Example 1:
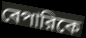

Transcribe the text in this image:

বেপারিকে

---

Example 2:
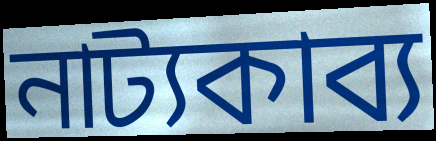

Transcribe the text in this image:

নাট্যকাব্য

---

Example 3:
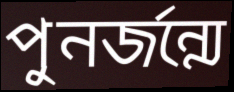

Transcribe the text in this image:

পুনর্জন্মে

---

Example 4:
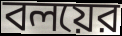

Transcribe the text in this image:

বলয়ের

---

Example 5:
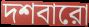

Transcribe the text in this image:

দশবারো